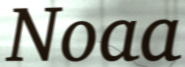
Noaa